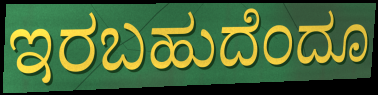
ಇರಬಹುದೆಂದೂ